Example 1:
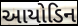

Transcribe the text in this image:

આયોડિન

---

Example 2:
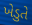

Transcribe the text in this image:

ખેડુતે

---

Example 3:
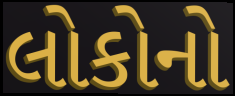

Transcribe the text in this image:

લોકોનો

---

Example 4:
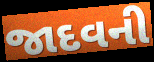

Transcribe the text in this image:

જાદવની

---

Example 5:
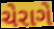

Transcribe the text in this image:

ચેરાગે